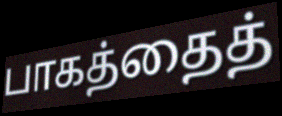
பாகத்தைத்